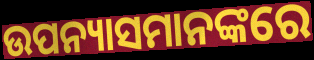
ଉପନ୍ୟାସମାନଙ୍କରେ